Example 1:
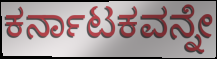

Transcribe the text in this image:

ಕರ್ನಾಟಕವನ್ನೇ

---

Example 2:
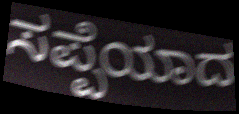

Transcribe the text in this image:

ಸಪ್ಪೆಯಾದ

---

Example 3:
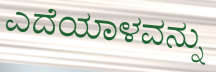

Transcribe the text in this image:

ಎದೆಯಾಳವನ್ನು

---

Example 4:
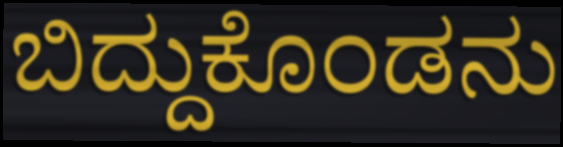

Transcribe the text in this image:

ಬಿದ್ದುಕೊಂಡನು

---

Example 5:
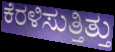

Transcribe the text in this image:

ಕೆರಳಿಸುತ್ತಿತ್ತು